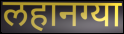
लहानग्या